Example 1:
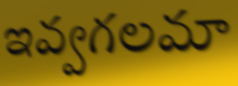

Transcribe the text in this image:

ఇవ్వగలమా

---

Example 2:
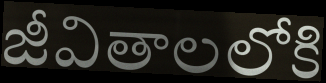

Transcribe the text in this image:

జీవితాలలోకి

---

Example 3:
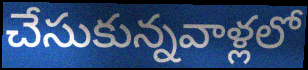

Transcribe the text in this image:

చేసుకున్నవాళ్లలో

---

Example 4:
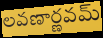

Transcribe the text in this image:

లవణార్ణవమ్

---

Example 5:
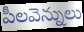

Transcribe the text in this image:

పీలవెన్నులు